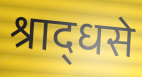
श्राद्धसे